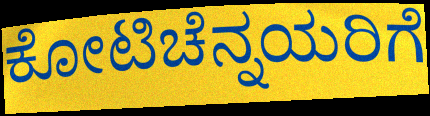
ಕೋಟಿಚೆನ್ನಯರಿಗೆ